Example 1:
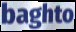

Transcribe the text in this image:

baghto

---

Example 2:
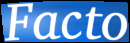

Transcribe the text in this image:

Facto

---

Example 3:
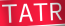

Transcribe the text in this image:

TATR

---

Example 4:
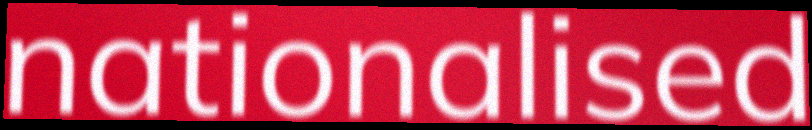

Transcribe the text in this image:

nationalised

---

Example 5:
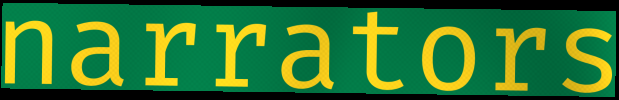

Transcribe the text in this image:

narrators